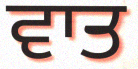
ਵਾਤ